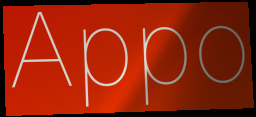
Appo